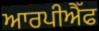
ਆਰਪੀਐੱਫ